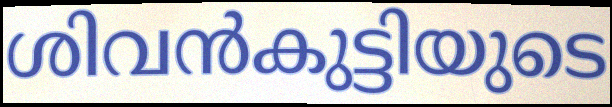
ശിവൻകുട്ടിയുടെ